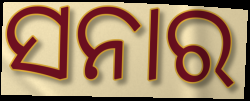
ସନାର